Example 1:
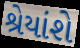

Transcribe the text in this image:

શ્રેયાંશે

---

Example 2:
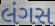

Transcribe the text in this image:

લંગસ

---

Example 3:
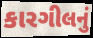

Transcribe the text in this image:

કારગીલનું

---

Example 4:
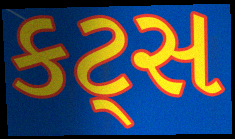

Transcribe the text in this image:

કટ્સ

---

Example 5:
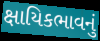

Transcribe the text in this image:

ક્ષાયિકભાવનું